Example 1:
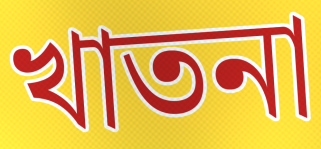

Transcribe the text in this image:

খাতনা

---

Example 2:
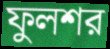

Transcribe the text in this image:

ফুলশর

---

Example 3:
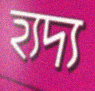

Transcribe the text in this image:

হ্যদ্য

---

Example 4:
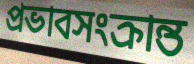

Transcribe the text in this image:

প্রভাবসংক্রান্ত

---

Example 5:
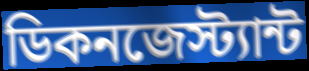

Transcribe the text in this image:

ডিকনজেস্ট্যান্ট